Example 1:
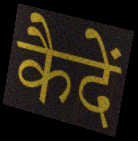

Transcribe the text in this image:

कैदें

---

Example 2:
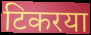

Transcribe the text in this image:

टिकरया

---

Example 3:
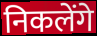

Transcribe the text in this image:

निकलेंगे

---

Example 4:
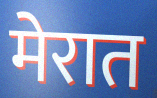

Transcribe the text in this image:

मेरात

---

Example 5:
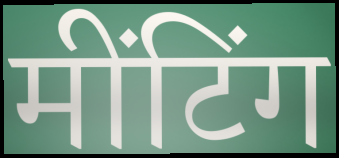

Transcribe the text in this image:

मींटिंग